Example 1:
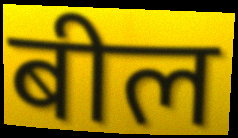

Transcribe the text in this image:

बील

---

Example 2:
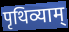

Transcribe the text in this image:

पृथिव्याम्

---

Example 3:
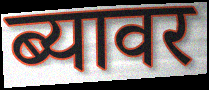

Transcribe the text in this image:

ब्यावर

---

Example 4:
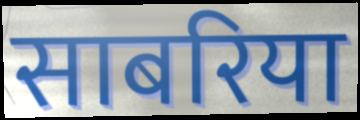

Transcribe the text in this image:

साबरिया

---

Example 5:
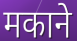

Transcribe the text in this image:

मकाने